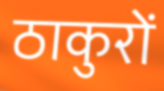
ठाकुरों